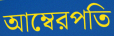
আম্বেরপতি